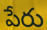
పేరు